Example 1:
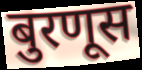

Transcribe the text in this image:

बुरणूस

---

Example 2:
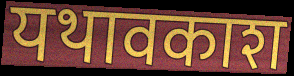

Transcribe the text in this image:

यथावकाश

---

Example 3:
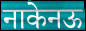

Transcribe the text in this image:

नाकेनऊ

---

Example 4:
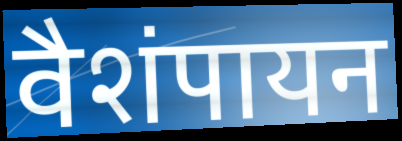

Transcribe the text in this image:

वैशंपायन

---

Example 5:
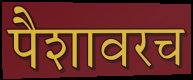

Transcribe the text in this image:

पैशावरच